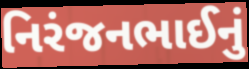
નિરંજનભાઈનું